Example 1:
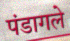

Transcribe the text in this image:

पंडागले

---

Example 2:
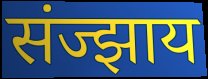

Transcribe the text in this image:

संज्झाय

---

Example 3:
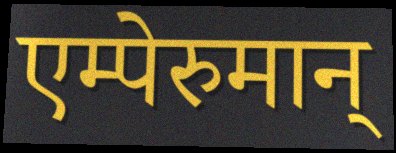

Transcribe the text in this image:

एम्पेरुमान्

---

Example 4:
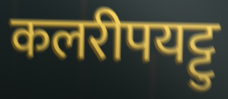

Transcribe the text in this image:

कलरीपयट्टु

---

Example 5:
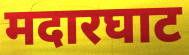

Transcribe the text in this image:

मदारघाट